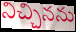
నిచ్చినను